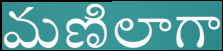
మణిలాగా